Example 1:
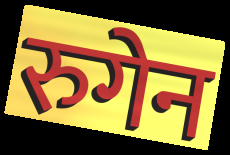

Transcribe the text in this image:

रुगेन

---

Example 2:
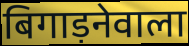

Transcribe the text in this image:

बिगाड़नेवाला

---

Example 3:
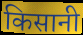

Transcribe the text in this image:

किसानी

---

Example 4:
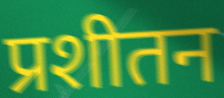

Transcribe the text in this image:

प्रशीतन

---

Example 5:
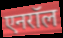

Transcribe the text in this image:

एनरॉल